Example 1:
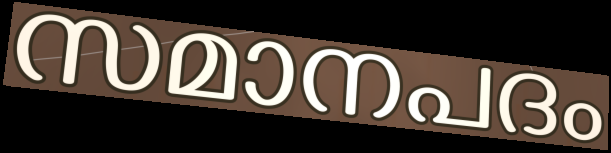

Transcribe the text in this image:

സമാനപദം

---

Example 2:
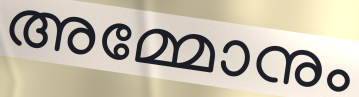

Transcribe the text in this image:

അമ്മോനും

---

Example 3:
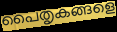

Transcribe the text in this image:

പൈതൃകങ്ങളെ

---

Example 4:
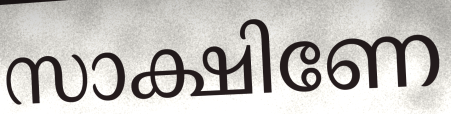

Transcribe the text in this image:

സാക്ഷിണേ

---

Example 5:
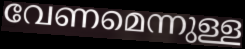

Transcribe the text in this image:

വേണമെന്നുള്ള